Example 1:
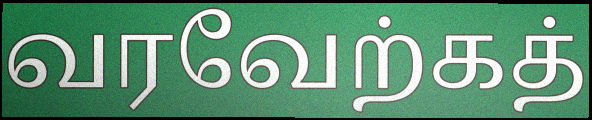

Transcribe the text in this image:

வரவேற்கத்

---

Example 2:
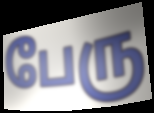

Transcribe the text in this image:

பேரு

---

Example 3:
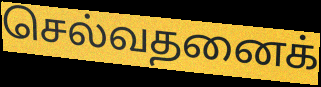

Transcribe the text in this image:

செல்வதனைக்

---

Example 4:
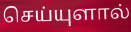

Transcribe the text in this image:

செய்யுளால்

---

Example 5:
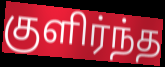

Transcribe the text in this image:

குளிர்ந்த